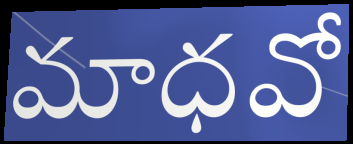
మాధవో